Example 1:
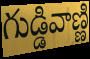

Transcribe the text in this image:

గుడ్డివాణ్ణి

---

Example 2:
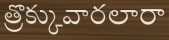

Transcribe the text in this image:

త్రొక్కువారలారా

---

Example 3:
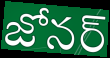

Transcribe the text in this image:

జోనర్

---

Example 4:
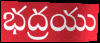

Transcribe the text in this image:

భద్రయు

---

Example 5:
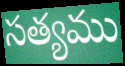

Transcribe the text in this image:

సత్యము